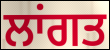
ਲਾਂਗਤ